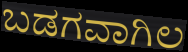
ಬಡಗವಾಗಿಲ